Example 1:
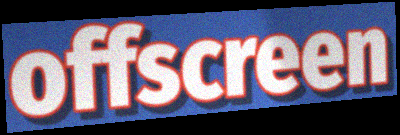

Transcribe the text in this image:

offscreen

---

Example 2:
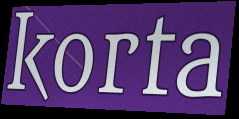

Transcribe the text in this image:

korta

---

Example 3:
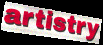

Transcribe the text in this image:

artistry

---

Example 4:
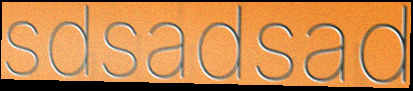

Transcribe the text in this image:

sdsadsad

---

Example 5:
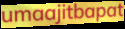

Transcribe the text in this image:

umaajitbapat